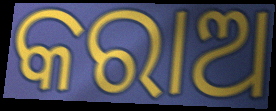
କରାଅ